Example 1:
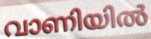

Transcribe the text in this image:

വാണിയിൽ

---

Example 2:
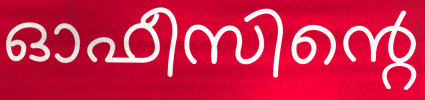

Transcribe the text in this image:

ഓഫീസിന്റെ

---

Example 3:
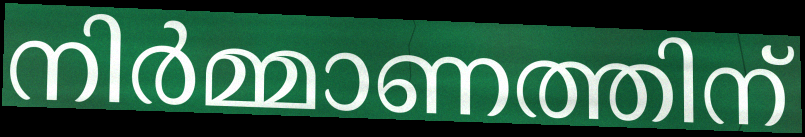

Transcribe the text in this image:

നിർമ്മാണത്തിന്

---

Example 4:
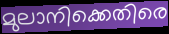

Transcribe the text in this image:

മുലാനിക്കെതിരെ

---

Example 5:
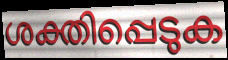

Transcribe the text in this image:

ശക്തിപ്പെടുക